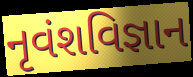
નૃવંશવિજ્ઞાન